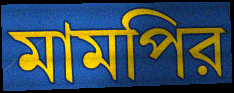
মামপির